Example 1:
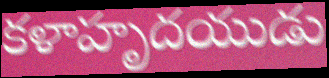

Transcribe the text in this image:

కళాహృదయుడు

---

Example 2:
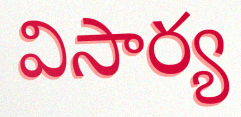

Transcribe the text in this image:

విసార్య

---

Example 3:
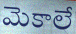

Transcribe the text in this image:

మెకాలే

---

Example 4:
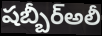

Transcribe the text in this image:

షబ్బీర్అలీ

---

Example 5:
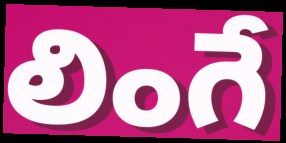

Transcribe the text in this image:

లింగే